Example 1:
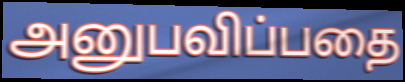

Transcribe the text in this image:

அனுபவிப்பதை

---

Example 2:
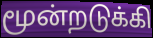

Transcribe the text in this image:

மூன்றடுக்கி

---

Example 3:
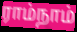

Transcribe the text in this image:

ராம்நாம்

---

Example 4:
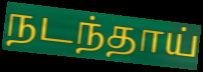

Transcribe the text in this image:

நடந்தாய்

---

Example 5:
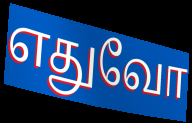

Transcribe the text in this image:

எதுவோ